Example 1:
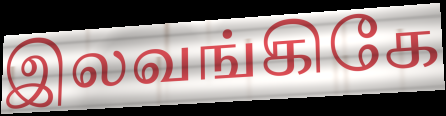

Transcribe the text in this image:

இலவங்கிகே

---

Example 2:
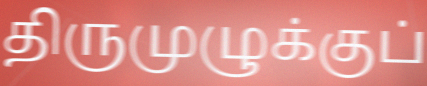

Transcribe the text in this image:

திருமுழுக்குப்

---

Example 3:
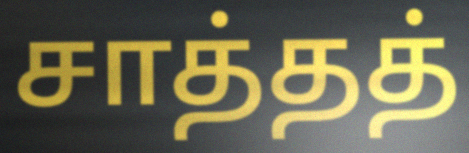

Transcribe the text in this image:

சாத்தத்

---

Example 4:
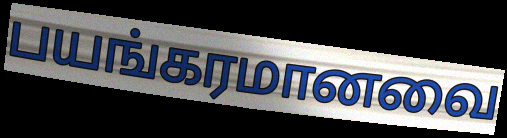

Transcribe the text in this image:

பயங்கரமானவை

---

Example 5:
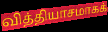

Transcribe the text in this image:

வித்தியாசமாகக்